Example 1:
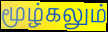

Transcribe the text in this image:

மூழ்கலும்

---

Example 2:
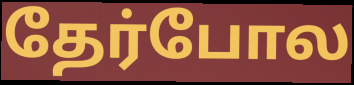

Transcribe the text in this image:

தேர்போல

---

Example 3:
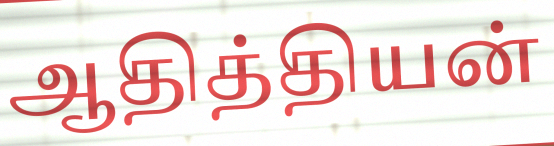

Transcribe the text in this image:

ஆதித்தியன்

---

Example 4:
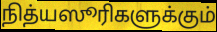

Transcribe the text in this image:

நித்யஸூரிகளுக்கும்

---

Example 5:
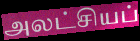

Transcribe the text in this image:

அலட்சியப்